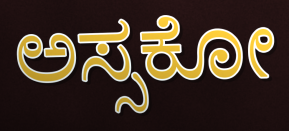
ಅಸ್ಸಕೋ